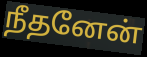
நீதனேன்